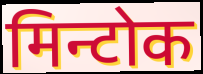
मिन्टोक